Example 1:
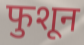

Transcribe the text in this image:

फुशून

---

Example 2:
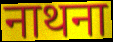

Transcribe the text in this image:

नाथना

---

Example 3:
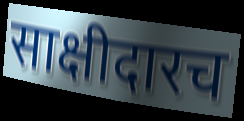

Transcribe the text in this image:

साक्षीदारच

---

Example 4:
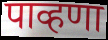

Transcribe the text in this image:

पाव्हणा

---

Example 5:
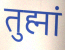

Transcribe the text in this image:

तुह्मां